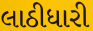
લાઠીધારી